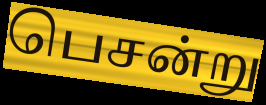
பெசன்று